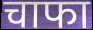
चाफा